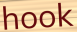
hook